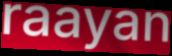
raayan